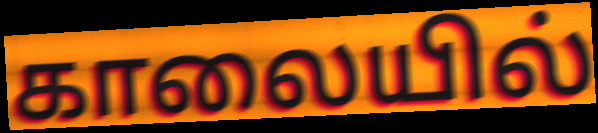
காலையில்